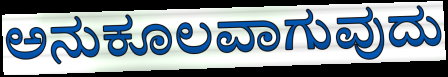
ಅನುಕೂಲವಾಗುವುದು